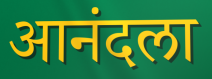
आनंदला